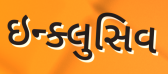
ઇન્ક્લુસિવ